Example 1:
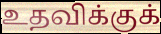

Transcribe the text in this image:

உதவிக்குக்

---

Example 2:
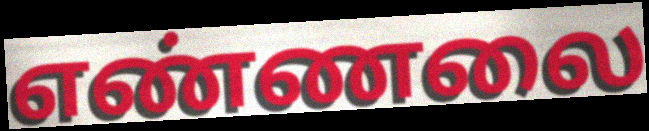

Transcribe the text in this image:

எண்ணலை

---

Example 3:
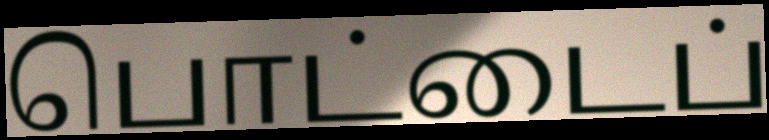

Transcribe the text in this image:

பொட்டைப்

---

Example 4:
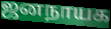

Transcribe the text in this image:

ஜனநாயக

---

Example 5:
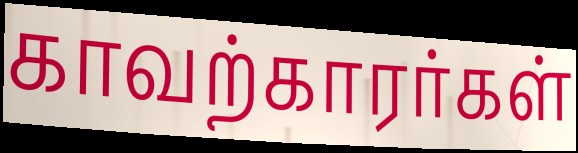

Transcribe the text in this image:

காவற்காரர்கள்